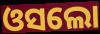
ଓସଲୋ